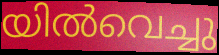
യിൽവെച്ചു